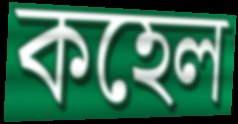
কহেল